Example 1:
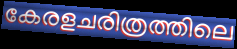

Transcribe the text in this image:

കേരളചരിത്രത്തിലെ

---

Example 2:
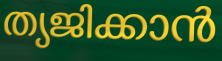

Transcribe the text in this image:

ത്യജിക്കാൻ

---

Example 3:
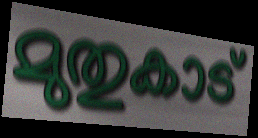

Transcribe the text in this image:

മുതുകാട്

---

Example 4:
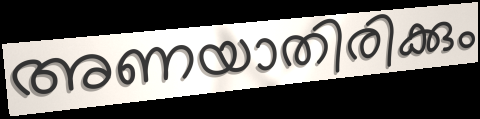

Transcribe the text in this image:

അണയാതിരിക്കും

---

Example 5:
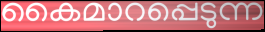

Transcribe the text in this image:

കൈമാറപ്പെടുന്ന